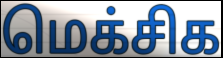
மெக்சிக